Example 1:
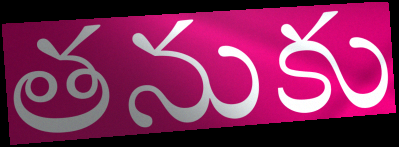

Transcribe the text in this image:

తనుకు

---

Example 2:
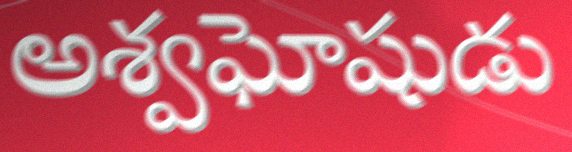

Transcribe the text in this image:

అశ్వఘోషుడు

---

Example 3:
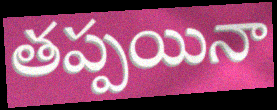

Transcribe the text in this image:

తప్పయినా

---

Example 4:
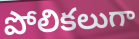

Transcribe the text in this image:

పోలికలుగా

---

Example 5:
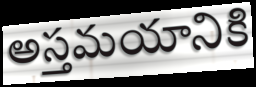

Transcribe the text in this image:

అస్తమయానికి